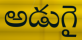
అడుగై